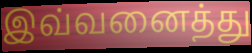
இவ்வனைத்து